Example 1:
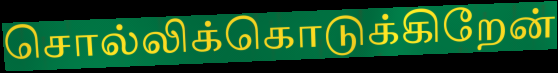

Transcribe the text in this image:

சொல்லிக்கொடுக்கிறேன்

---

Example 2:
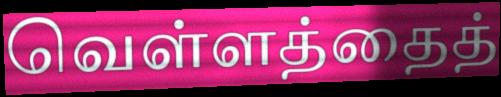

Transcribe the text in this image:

வெள்ளத்தைத்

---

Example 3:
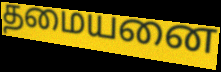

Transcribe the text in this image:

தமையனை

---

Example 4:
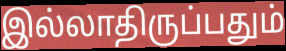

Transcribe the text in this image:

இல்லாதிருப்பதும்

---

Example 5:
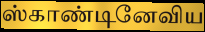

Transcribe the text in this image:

ஸ்காண்டினேவிய